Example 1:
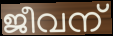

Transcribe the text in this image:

ജീവന്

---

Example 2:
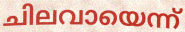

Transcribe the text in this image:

ചിലവായെന്ന്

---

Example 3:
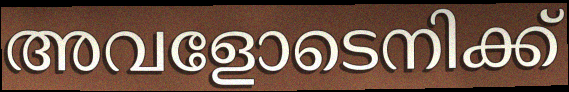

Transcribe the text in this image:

അവളോടെനിക്ക്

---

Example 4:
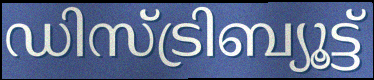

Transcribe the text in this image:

ഡിസ്ട്രിബ്യൂട്ട്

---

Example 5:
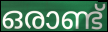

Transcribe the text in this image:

ഒരാണ്ട്